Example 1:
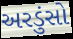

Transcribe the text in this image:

અરડુંસો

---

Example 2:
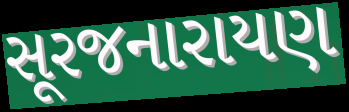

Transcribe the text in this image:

સૂરજનારાયણ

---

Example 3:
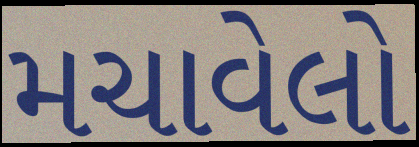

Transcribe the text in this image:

મચાવેલો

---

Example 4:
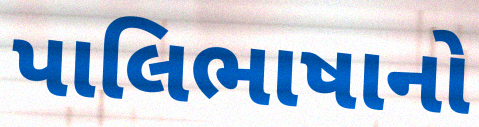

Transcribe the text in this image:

પાલિભાષાનો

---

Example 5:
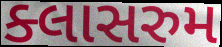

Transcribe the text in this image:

ક્લાસરુમ